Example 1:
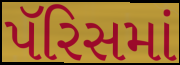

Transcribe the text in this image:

પૅરિસમાં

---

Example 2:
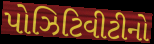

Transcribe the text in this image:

પોઝિટિવીટીનો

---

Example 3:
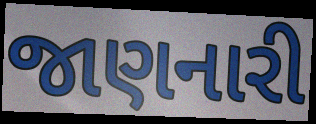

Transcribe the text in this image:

જાણનારી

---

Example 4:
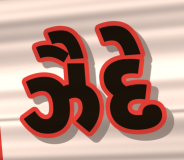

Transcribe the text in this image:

ઝૈદે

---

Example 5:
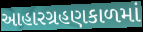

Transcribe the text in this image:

આહારગ્રહણકાળમાં